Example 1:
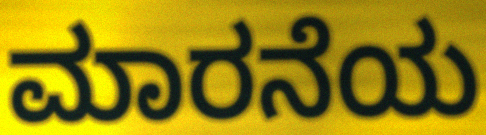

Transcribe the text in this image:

ಮಾರನೆಯ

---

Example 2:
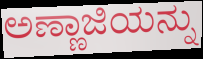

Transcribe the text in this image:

ಅಣ್ಣಾಜಿಯನ್ನು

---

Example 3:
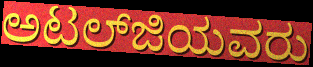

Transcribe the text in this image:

ಅಟಲ್‍ಜಿಯವರು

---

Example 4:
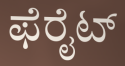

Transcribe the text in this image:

ಫೆರೈಟ್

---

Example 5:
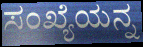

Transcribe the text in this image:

ಸಂಖ್ಯೆಯನ್ನ